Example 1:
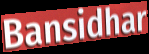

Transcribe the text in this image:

Bansidhar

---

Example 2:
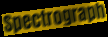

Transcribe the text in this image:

Spectrograph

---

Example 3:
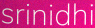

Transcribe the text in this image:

srinidhi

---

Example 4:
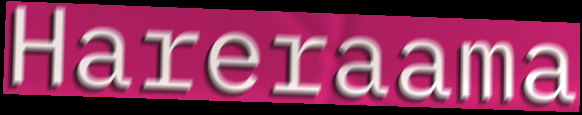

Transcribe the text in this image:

Hareraama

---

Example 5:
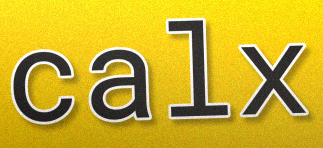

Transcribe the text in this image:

calx